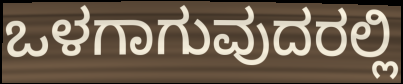
ಒಳಗಾಗುವುದರಲ್ಲಿ